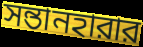
সন্তানহারার